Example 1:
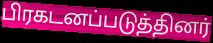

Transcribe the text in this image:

பிரகடனப்படுத்தினர்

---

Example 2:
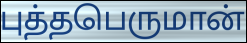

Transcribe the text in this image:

புத்தபெருமான்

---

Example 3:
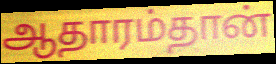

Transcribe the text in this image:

ஆதாரம்தான்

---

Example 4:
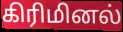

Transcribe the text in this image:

கிரிமினல்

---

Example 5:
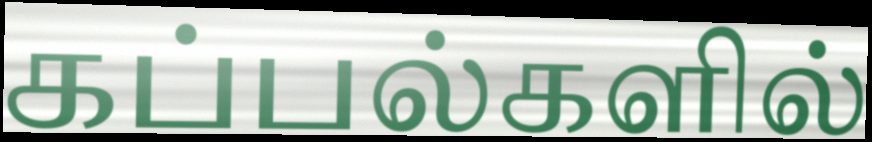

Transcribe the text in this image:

கப்பல்களில்